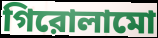
গিরোলামো